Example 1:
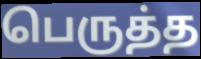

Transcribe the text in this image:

பெருத்த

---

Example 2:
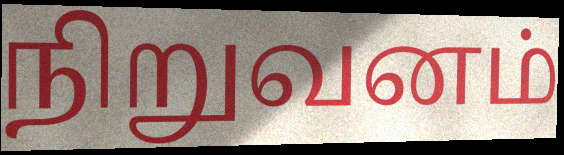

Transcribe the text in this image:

நிறுவனம்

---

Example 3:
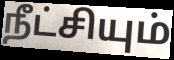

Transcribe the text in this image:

நீட்சியும்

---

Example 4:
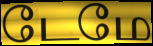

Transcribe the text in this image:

டேமே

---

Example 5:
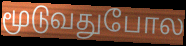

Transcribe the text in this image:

மூடுவதுபோல